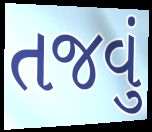
તજવું